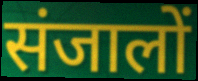
संजालों